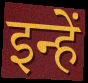
इन्हें